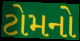
ટોમનો